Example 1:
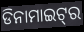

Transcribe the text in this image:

ଡିନାମାଇଟ୍‌ର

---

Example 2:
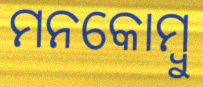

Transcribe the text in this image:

ମନକୋମ୍ବୁ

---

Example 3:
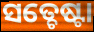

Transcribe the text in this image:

ସତ୍ଚେଷ୍ଟା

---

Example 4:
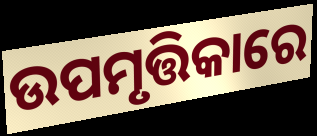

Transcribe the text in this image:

ଉପମୃତ୍ତିକାରେ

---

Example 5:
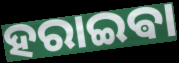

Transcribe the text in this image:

ହରାଇଵା